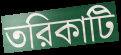
তরিকাটি